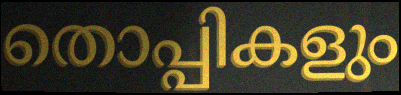
തൊപ്പികളും